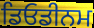
ਡਿਓਡੀਨਮ